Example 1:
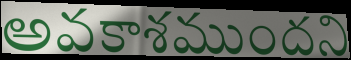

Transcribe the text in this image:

అవకాశముందని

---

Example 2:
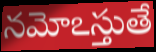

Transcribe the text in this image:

నమోఽస్తుతే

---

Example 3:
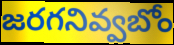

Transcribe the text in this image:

జరగనివ్వబోం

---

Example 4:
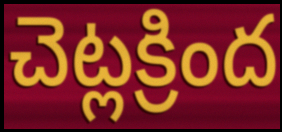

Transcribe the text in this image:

చెట్లక్రింద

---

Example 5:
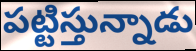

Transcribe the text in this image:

పట్టిస్తున్నాడు